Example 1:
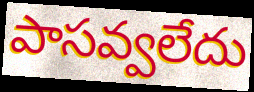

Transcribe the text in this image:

పాసవ్వలేదు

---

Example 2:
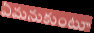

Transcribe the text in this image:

ఏమనుకుంటూ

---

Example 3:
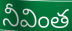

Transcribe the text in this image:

నీవింత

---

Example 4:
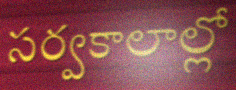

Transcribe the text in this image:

సర్వకాలాల్లో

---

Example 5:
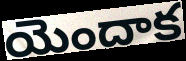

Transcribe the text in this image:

యెందాక